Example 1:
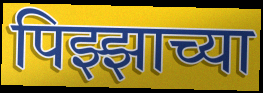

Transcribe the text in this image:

पिझ्झाच्या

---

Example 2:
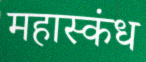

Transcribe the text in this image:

महास्कंध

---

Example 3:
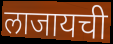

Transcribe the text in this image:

लाजायची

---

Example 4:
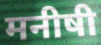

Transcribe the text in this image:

मनीषी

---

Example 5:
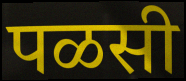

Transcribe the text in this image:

पळसी